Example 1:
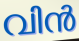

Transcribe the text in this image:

വിൻ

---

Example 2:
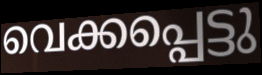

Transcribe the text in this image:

വെക്കപ്പെട്ടു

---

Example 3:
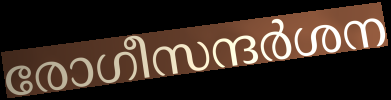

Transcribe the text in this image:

രോഗീസന്ദർശന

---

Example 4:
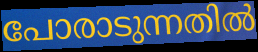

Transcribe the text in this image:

പോരാടുന്നതിൽ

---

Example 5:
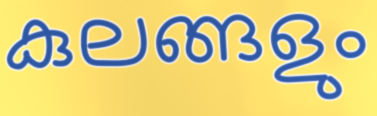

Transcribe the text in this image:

കുലങ്ങളും